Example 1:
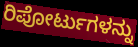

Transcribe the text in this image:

ರಿಪೋರ್ಟುಗಳನ್ನು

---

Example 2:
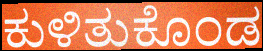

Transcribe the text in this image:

ಕುಳಿತುಕೊಂಡ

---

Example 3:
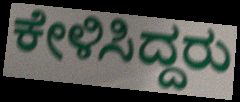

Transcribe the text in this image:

ಕೇಳಿಸಿದ್ದರು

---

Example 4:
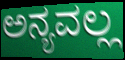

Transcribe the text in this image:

ಅನ್ಯವಲ್ಲ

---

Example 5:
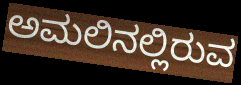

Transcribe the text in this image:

ಅಮಲಿನಲ್ಲಿರುವ